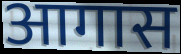
आगास